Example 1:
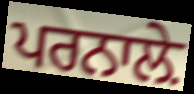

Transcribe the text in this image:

ਪਰਨਾਲ਼ੇ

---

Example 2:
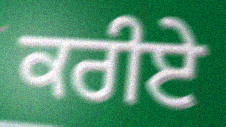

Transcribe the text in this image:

ਕਰੀਏੇ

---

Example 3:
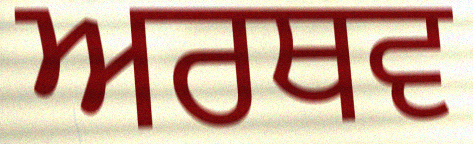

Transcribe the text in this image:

ਅਰਥਵ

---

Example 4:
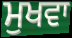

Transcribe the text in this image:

ਮੁਖਵਾ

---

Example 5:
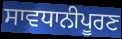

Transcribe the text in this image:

ਸਾਵਧਾਨੀਪੂਰਣ